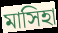
মাসিহা